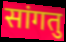
सांगतु